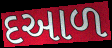
દઆળ